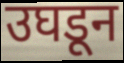
उघडून